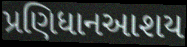
પ્રણિધાનઆશય